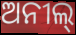
ଅନୀଲ୍